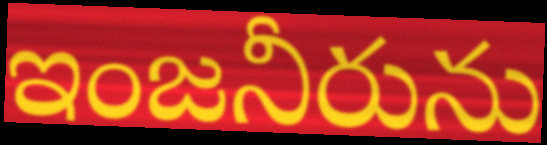
ఇంజనీరును